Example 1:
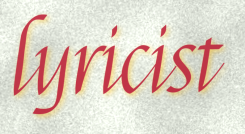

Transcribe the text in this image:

lyricist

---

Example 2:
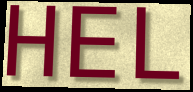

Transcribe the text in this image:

HEL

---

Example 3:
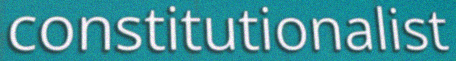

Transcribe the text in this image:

constitutionalist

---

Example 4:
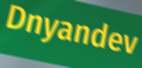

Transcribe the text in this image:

Dnyandev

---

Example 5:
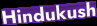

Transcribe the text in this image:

Hindukush